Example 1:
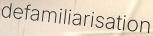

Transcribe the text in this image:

defamiliarisation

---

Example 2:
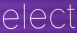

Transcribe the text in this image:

elect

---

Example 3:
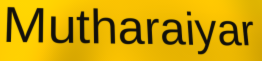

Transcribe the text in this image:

Mutharaiyar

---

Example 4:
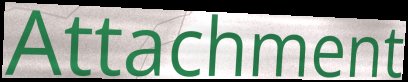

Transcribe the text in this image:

Attachment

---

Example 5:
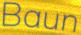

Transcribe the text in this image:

Baun